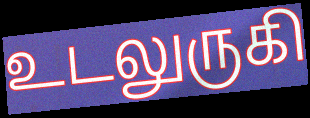
உடலுருகி